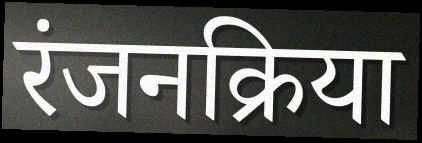
रंजनक्रिया